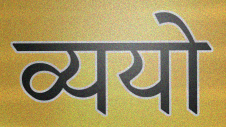
व्ययो